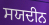
ਸਯਦੀਨ